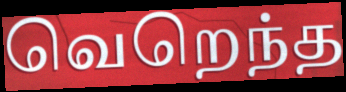
வெறெந்த